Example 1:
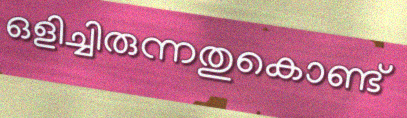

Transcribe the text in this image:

ഒളിച്ചിരുന്നതുകൊണ്ട്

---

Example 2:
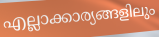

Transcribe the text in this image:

എല്ലാക്കാര്യങ്ങളിലും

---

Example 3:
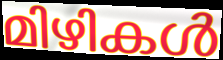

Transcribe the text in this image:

മിഴികൾ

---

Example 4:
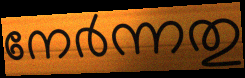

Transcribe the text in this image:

നേർന്നതു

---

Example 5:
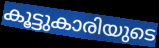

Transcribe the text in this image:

കൂട്ടുകാരിയുടെ